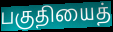
பகுதியைத்